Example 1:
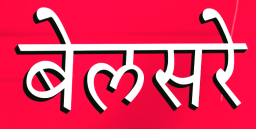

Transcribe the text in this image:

बेलसरे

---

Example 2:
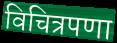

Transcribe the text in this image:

विचित्रपणा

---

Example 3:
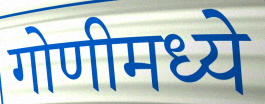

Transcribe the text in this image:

गोणीमध्ये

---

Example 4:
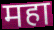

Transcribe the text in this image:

महा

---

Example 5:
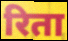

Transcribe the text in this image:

रिता